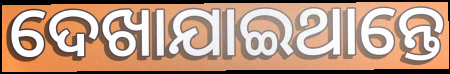
ଦେଖାଯାଇଥାନ୍ତେ